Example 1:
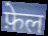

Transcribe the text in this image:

फ़ेल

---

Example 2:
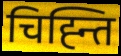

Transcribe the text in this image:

चिह्न्ति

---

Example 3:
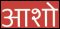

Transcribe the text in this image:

आशो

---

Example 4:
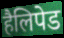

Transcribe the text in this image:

हैलिपेड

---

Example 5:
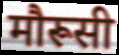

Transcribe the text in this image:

मौरूसी